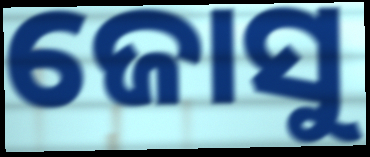
ଜୋସୁ